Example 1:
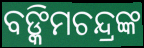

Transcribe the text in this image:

ବଙ୍କିମଚନ୍ଦ୍ରଙ୍କ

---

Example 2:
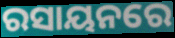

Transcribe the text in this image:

ରସାୟନରେ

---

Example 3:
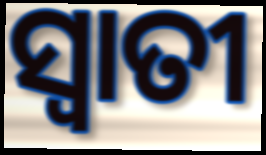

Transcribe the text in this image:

ସ୍ୱାତୀ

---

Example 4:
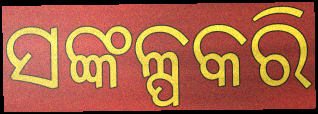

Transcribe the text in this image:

ସଙ୍କଳ୍ପକରି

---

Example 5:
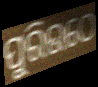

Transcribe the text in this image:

ପୁରିଉଠେ